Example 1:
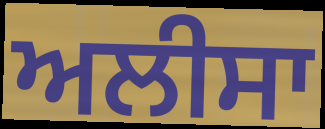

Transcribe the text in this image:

ਅਲੀਸਾ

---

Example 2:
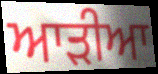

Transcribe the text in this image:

ਆੜੀਆ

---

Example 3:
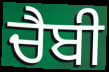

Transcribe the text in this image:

ਚੈਬੀ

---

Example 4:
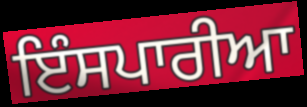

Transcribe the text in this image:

ਇੰਸਪਾਰੀਆ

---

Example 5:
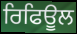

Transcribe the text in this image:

ਰਿਫਿਊਲ